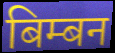
बिम्बन